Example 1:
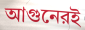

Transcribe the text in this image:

আগুনেরই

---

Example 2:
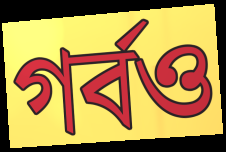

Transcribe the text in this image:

গর্বও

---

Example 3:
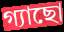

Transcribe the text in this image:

গ্যাছো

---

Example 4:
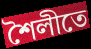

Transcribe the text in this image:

শৈলীতে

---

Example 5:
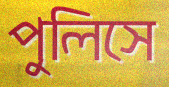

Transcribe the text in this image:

পুলিসে